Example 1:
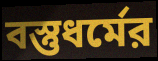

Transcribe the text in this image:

বস্তুধর্মের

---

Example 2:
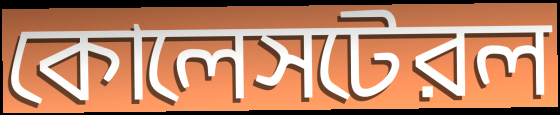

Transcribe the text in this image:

কোলেসটেরল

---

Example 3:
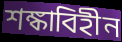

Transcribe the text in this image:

শঙ্কাবিহীন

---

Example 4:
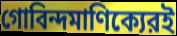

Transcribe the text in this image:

গোবিন্দমাণিক্যেরই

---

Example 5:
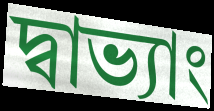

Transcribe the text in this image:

দ্বাভ্যাং